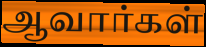
ஆவார்கள்